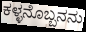
ಕಳ್ಳನೊಬ್ಬನನು